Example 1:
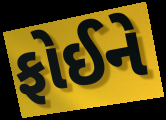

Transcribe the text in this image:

ફોઈને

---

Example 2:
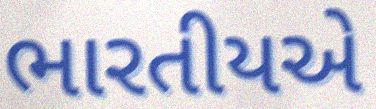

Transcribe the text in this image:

ભારતીયએ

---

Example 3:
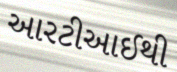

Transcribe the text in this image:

આરટીઆઈથી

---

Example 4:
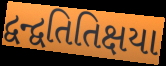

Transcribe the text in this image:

દ્વન્દ્વતિતિક્ષયા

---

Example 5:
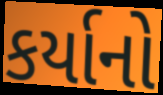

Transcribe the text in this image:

કર્યાનો